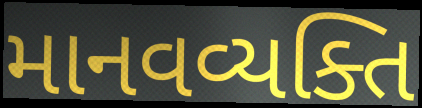
માનવવ્યક્તિ